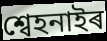
শ্বেহনাইৰ